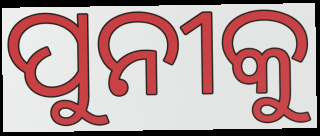
ପୁନୀକୁ